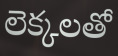
లెక్కలతో